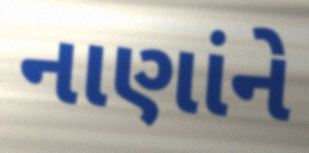
નાણાંને